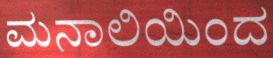
ಮನಾಲಿಯಿಂದ